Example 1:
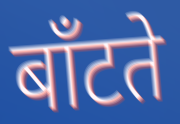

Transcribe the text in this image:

बाँटते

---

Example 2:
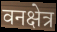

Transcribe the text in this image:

वनक्षेत्र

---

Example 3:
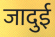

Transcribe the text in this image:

जादुई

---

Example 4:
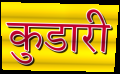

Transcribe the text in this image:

कुडारी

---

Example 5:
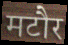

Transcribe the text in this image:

मटौर